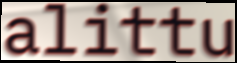
alittu